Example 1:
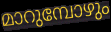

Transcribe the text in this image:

മാറുമ്പോഴും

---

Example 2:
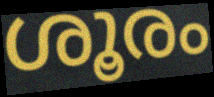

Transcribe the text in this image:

ശൂരം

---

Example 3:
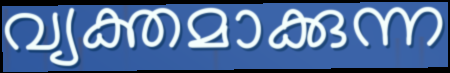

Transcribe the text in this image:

വ്യക്തമാക്കുന്ന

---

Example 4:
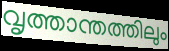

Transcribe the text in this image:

വൃത്താന്തത്തിലും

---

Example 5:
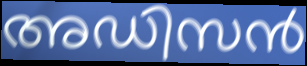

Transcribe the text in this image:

അഡിസൻ